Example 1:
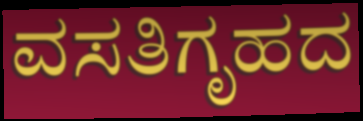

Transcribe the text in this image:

ವಸತಿಗೃಹದ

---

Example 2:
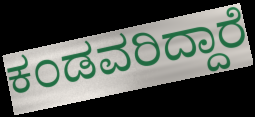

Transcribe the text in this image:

ಕಂಡವರಿದ್ದಾರೆ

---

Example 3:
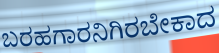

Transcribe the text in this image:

ಬರಹಗಾರನಿಗಿರಬೇಕಾದ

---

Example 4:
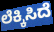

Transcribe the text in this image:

ಲೆಕ್ಕಿಸಿದೆ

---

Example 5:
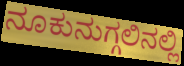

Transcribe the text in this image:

ನೂಕುನುಗ್ಗಲಿನಲ್ಲಿ